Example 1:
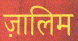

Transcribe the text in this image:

ज़ालिम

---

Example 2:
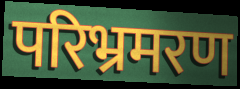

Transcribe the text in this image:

परिभ्रमरण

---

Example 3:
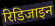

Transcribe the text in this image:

रिडिजाइन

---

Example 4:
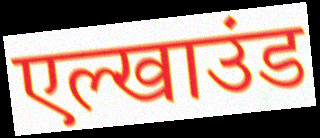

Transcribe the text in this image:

एल्खाउंड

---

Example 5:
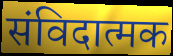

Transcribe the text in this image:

संविदात्मक